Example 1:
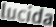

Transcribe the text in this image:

lucida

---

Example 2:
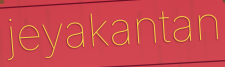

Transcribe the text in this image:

jeyakantan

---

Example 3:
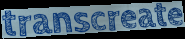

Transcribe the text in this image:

transcreate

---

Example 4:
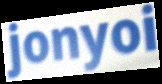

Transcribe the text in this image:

jonyoi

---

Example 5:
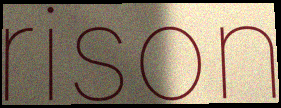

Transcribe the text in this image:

rison